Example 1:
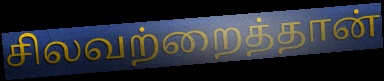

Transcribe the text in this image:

சிலவற்றைத்தான்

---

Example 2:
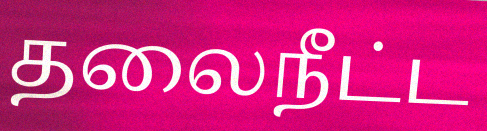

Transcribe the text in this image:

தலைநீட்ட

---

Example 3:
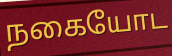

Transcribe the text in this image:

நகையோட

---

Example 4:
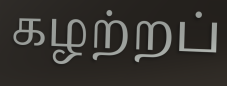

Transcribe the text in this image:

கழற்றப்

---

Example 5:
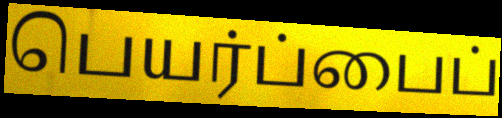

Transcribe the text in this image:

பெயர்ப்பைப்